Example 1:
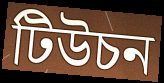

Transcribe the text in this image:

টিউচন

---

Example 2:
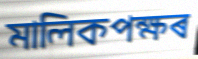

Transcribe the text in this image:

মালিকপক্ষৰ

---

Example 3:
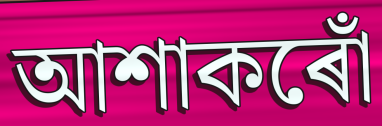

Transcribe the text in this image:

আশাকৰোঁ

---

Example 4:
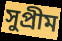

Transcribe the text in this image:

সুপ্ৰীম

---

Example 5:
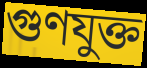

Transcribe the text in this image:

গুণযুক্ত